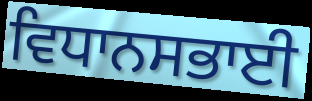
ਵਿਧਾਨਸਭਾਈ